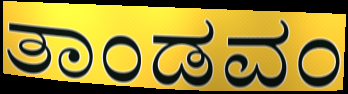
ತಾಂಡವಂ